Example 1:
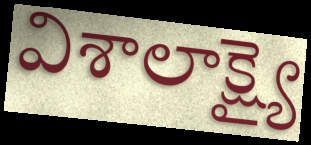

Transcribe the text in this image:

విశాలాక్ష్యై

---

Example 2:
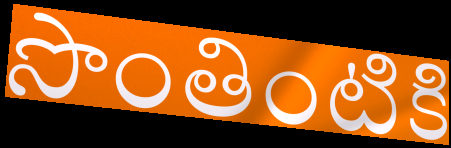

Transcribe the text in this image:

సొంతింటికి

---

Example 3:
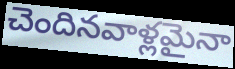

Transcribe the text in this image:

చెందినవాళ్లమైనా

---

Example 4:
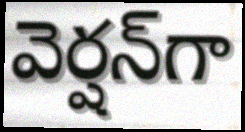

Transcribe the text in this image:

వెర్షన్‌గా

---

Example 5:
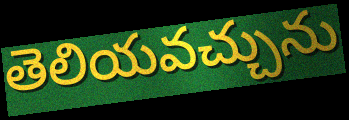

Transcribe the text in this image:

తెలియవచ్చును